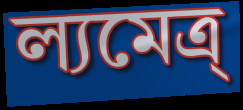
ল্যমেত্র্